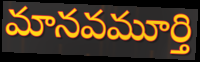
మానవమూర్తి